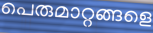
പെരുമാറ്റങ്ങളെ